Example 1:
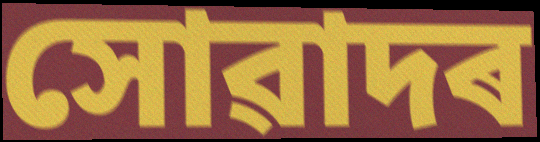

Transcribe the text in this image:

সোৱাদৰ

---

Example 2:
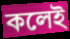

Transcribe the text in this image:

কলেই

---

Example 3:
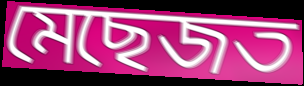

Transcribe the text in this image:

মেছেজত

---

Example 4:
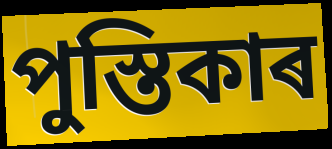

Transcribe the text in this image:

পুস্তিকাৰ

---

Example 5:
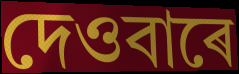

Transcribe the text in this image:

দেওবাৰে